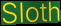
Sloth